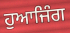
ਹੁਆਜਿੰਗ